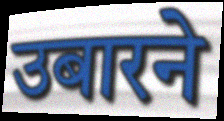
उबारने